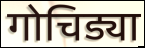
गोचिड्या